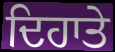
ਦਿਹਾਤੇ